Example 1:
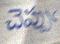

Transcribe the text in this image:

చెప్పుఁ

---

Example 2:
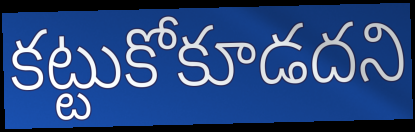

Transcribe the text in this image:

కట్టుకోకూడదని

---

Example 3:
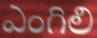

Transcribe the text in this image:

ఎంగిలి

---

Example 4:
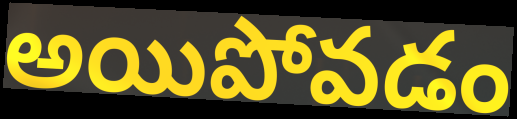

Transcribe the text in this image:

అయిపోవడం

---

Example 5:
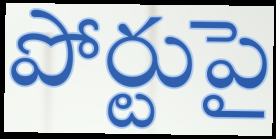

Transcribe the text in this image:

పోర్టుపై